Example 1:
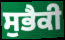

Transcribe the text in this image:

ਸੁਭੈਕੀ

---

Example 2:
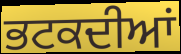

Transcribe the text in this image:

ਭਟਕਦੀਆਂ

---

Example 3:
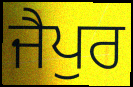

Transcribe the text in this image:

ਜੈਪੁਰ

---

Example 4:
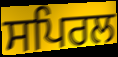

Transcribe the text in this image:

ਸਪਿਰਲ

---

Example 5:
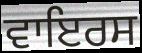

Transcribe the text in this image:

ਵਾਇਰਸ